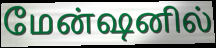
மேன்ஷனில்